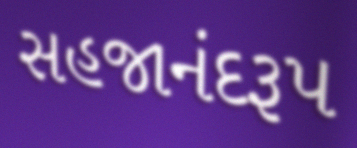
સહજાનંદરૂપ